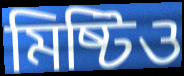
মিষ্টিও